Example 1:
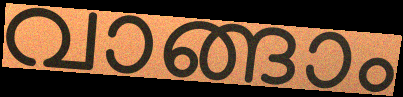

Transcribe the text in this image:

വാങ്ങാം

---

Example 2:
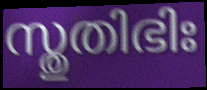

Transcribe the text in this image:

സ്തുതിഭിഃ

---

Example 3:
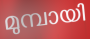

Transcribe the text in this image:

മുമ്പായി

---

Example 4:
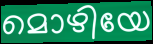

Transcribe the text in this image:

മൊഴിയേ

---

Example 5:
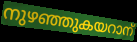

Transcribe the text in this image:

നുഴഞ്ഞുകയറാന്